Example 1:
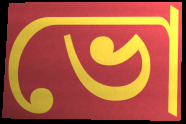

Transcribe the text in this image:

ভো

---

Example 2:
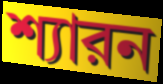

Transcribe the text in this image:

শ্যারন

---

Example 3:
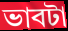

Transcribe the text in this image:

ভাবটা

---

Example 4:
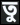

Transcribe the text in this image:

তু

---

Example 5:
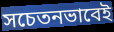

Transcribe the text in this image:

সচেতনভাবেই